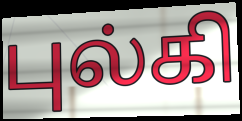
புல்கி